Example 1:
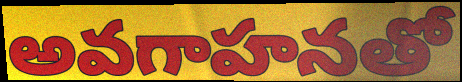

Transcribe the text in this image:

అవగాహనతో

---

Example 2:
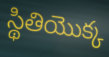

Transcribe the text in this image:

స్థితియొక్క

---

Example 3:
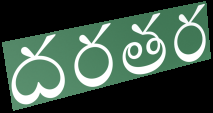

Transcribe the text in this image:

దరతర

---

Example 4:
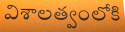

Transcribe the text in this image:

విశాలత్వంలోకి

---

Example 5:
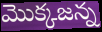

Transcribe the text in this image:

మొక్కజన్న